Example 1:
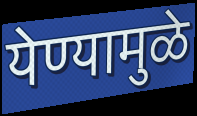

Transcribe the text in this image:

येण्यामुळे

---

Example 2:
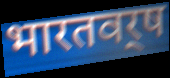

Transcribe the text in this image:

भारतवर्ष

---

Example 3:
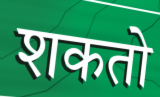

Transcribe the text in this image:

शकतो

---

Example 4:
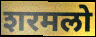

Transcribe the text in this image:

शरमलो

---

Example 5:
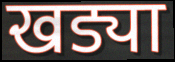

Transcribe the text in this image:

खड्या